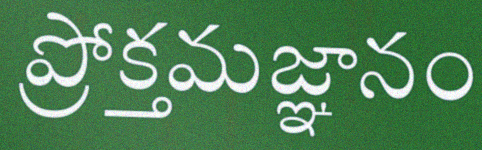
ప్రోక్తమజ్ఞానం